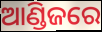
ଆଣ୍ଡିଜରେ